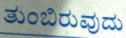
ತುಂಬಿರುವುದು